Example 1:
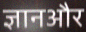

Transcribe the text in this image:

ज्ञानऔर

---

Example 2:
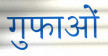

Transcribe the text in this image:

गुफाओं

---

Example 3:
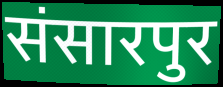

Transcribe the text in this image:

संसारपुर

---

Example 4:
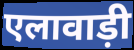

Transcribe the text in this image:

एलावाड़ी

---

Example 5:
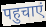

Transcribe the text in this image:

पहुचाएं